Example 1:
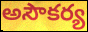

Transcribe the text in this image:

అసౌకర్య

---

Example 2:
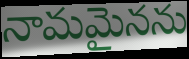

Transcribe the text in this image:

నామమైనను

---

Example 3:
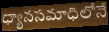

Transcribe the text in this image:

ధ్యానసమాధిలోనే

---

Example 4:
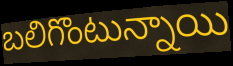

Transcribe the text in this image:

బలిగొంటున్నాయి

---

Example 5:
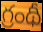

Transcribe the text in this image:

గ్రంథీ